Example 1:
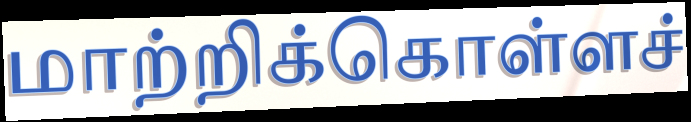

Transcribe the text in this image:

மாற்றிக்கொள்ளச்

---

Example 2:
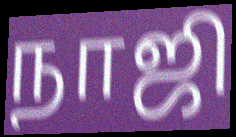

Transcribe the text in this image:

நாஜி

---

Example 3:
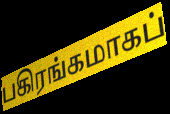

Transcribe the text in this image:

பகிரங்கமாகப்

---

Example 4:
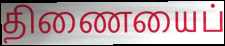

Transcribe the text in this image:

திணையைப்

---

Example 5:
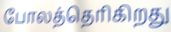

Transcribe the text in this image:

போலத்தெரிகிறது